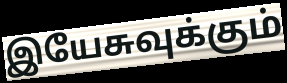
இயேசுவுக்கும்